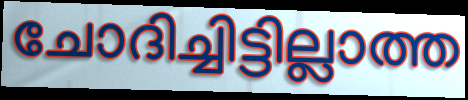
ചോദിച്ചിട്ടില്ലാത്ത